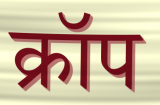
क्रॉप